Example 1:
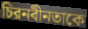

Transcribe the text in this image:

চিরনবীনতাকে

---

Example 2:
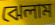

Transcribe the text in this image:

ঝেলাম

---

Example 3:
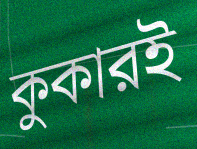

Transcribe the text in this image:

কুকারই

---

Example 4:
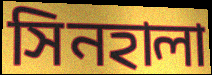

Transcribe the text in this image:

সিনহালা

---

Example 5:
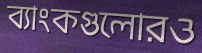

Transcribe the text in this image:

ব্যাংকগুলোরও